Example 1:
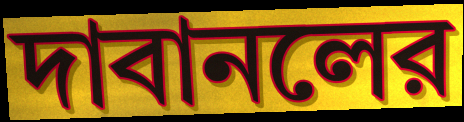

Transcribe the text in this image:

দাবানলের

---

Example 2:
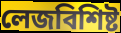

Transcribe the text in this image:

লেজবিশিষ্ট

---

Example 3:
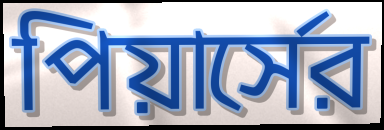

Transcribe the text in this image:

পিয়ার্সের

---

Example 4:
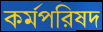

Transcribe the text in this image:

কর্মপরিষদ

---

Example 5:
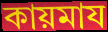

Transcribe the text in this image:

কায়মায